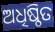
ଅଧିଷ୍ଠିତ